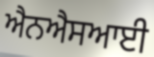
ਐਨਐਸਆਈ